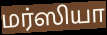
மர்ஸியா